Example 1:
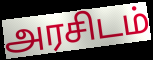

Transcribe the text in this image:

அரசிடம்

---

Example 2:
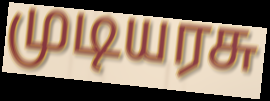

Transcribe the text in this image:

முடியரசு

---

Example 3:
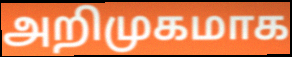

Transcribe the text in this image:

அறிமுகமாக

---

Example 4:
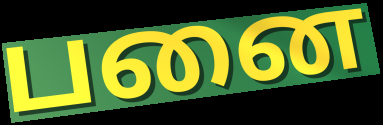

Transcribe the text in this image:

பனை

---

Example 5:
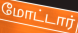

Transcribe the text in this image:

மோட்டார்